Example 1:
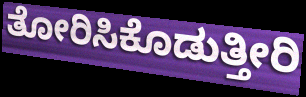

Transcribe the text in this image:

ತೋರಿಸಿಕೊಡುತ್ತೀರಿ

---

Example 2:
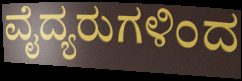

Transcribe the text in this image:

ವೈದ್ಯರುಗಳಿಂದ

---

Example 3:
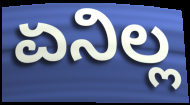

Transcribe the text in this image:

ಏನಿಲ್ಲ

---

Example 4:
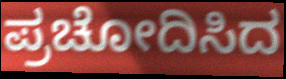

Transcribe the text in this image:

ಪ್ರಚೋದಿಸಿದ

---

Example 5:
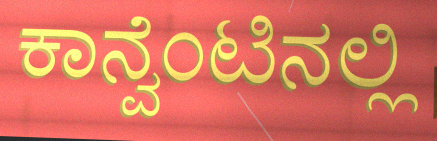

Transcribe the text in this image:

ಕಾನ್ವೆಂಟಿನಲ್ಲಿ